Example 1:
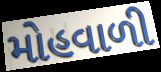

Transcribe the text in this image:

મોહવાળી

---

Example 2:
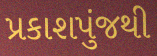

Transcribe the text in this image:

પ્રકાશપુંજથી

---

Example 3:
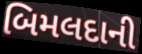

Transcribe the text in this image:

બિમલદાની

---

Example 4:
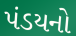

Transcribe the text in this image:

પંડયનો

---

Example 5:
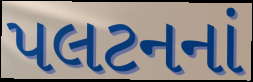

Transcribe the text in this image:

પલટનનાં